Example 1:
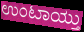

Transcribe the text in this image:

ಉಂಟಾಯ್ತು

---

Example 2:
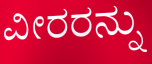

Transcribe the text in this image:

ವೀರರನ್ನು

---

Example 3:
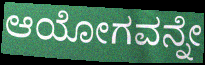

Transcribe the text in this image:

ಆಯೋಗವನ್ನೇ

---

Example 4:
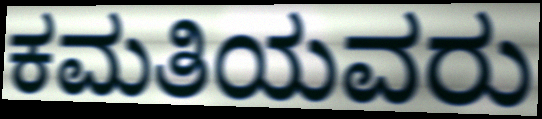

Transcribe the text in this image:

ಕಮತಿಯವರು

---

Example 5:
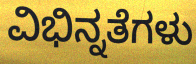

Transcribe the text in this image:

ವಿಭಿನ್ನತೆಗಳು